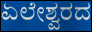
ಏಲೇಶ್ವರದ